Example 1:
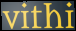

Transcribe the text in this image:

vithi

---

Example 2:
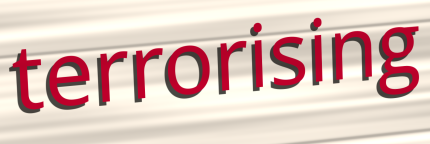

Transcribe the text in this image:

terrorising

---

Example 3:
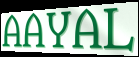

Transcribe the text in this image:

AAYAL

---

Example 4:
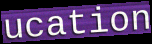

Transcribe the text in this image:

ucation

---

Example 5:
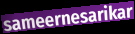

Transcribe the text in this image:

sameernesarikar